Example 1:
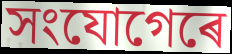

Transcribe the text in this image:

সংযোগেৰে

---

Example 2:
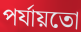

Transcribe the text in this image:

পৰ্যায়তো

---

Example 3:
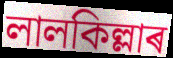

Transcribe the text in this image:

লালকিল্লাৰ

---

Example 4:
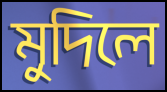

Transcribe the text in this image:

মুদিলে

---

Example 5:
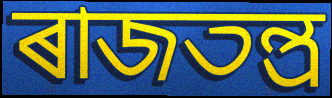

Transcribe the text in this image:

ৰাজতন্ত্ৰ